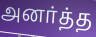
அனர்த்த